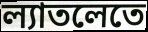
ল্যাতলেতে